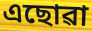
এছোৱা